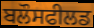
ਬਲੌਸਫੀਲਡ